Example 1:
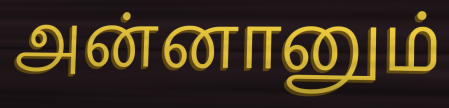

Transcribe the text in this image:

அன்னானும்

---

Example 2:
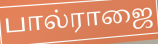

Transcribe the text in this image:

பால்ராஜை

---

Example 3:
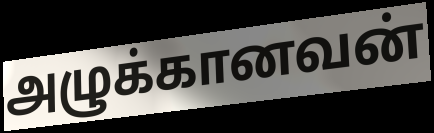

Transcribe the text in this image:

அழுக்கானவன்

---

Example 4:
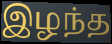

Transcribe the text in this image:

இழந்த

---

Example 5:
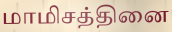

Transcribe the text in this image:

மாமிசத்தினை